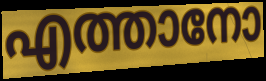
എത്താനോ